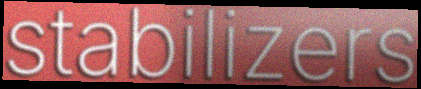
stabilizers